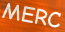
MERC